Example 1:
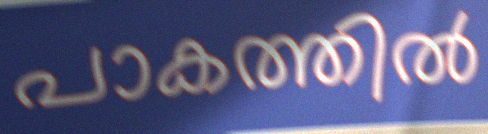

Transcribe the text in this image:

പാകത്തിൽ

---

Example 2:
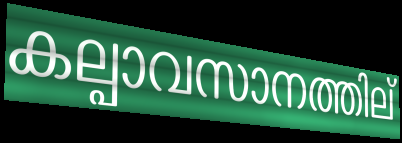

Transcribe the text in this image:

കല്പാവസാനത്തില്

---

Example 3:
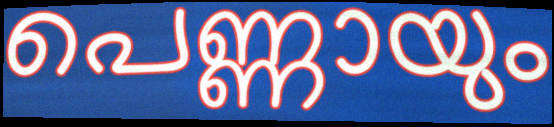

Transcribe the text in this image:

പെണ്ണായും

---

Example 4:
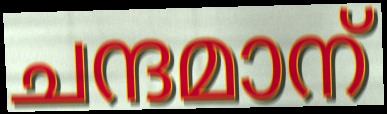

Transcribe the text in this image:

ചന്ദമാന്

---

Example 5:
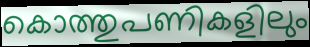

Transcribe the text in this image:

കൊത്തുപണികളിലും